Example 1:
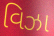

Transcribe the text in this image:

વિઝા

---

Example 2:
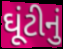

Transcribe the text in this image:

ઘૂંટીનું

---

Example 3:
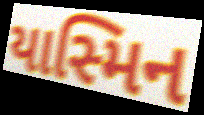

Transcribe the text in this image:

યાસ્મિન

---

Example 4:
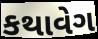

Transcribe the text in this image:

કથાવેગ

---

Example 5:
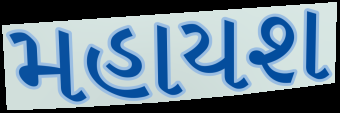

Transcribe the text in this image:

મહાયશ